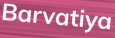
Barvatiya